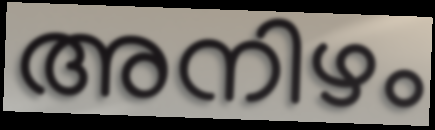
അനിഴം